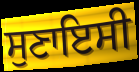
ਸੁਣਾਇਸੀ